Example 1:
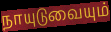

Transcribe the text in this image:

நாயுடுவையும்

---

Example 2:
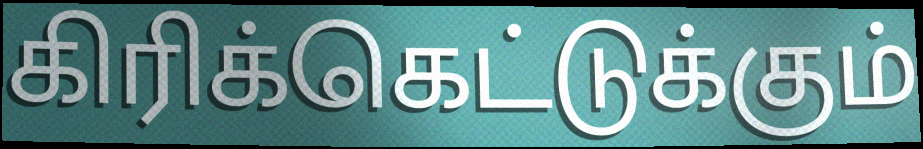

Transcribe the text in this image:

கிரிக்கெட்டுக்கும்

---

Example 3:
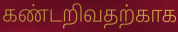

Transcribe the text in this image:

கண்டறிவதற்காக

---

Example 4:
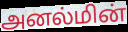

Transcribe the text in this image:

அனல்மின்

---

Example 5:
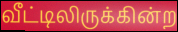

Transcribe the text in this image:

வீட்டிலிருக்கின்ற